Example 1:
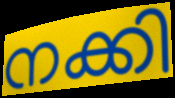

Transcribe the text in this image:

നക്കി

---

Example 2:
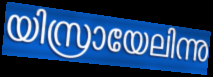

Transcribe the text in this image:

യിസ്രായേലിന്നു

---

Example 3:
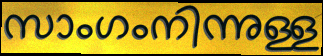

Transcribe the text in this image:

സാംഗംനിന്നുള്ള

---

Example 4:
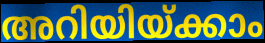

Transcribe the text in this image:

അറിയിയ്ക്കാം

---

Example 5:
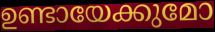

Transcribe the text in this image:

ഉണ്ടായേക്കുമോ